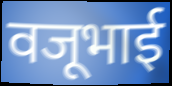
वजूभाई